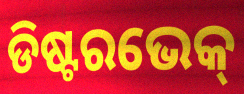
ଡିଷ୍ଟରଭେକ୍